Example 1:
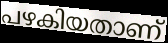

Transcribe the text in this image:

പഴകിയതാണ്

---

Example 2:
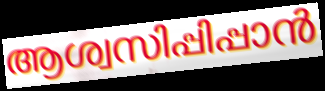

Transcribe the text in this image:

ആശ്വസിപ്പിപ്പാൻ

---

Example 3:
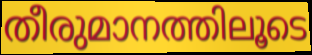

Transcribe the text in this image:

തീരുമാനത്തിലൂടെ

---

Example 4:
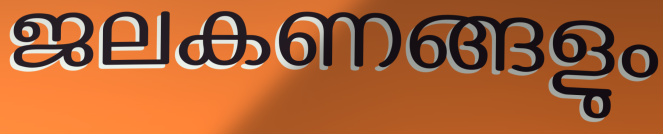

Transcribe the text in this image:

ജലകണങ്ങളും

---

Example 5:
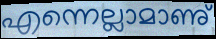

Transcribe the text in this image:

എന്നെല്ലാമാണു്